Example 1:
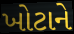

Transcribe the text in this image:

ખોટાને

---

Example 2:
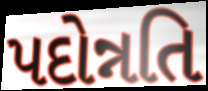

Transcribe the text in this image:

પદોન્નતિ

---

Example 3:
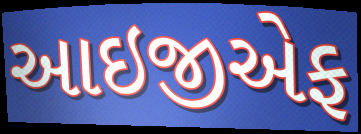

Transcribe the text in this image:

આઇજીએફ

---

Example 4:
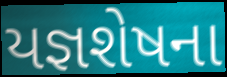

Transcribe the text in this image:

યજ્ઞશેષના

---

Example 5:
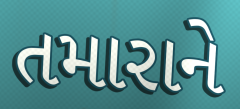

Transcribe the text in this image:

તમારાને